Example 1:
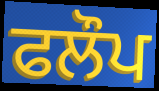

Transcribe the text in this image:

ਫਲੌਪ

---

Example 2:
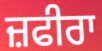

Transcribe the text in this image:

ਜ਼ਫੀਰਾ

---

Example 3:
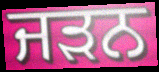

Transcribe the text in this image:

ਜੜਨ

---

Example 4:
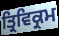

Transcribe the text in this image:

ਤ੍ਰਿਵਿਕ੍ਰਮ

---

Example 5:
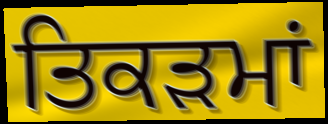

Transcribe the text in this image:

ਤਿਕੜਮਾਂ